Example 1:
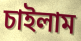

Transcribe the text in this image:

চাইলাম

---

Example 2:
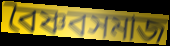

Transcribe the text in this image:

বৈষ্ণবসমাজ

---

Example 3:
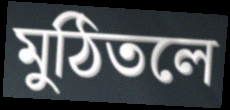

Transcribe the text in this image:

মুঠিতলে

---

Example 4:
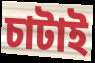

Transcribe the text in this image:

চাটাই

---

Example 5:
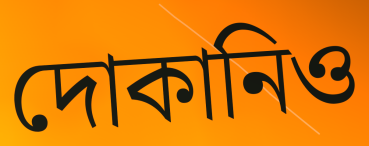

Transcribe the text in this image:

দোকানিও